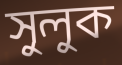
সুলুক